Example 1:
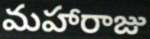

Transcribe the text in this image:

మహారాజు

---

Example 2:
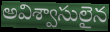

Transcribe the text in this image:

అవిశ్వాసులైన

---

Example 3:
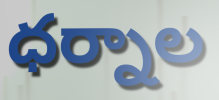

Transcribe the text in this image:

ధర్నాల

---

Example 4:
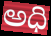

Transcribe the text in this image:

అధి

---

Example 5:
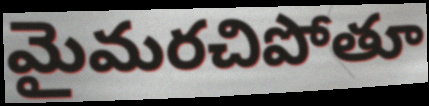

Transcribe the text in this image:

మైమరచిపోతూ